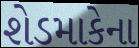
શેડમાકેના